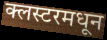
क्लस्टरमधून